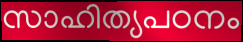
സാഹിത്യപഠനം